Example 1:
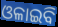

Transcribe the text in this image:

ଓଳାଇବି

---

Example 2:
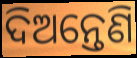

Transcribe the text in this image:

ଦିଅନ୍ତେଣି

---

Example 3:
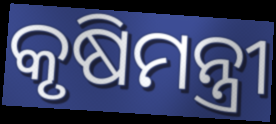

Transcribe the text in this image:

କୃଷିମନ୍ତ୍ରୀ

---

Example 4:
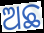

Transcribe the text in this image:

ଅଛ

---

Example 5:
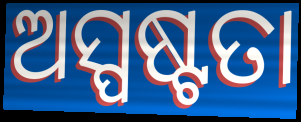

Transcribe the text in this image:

ଅସ୍ପଷ୍ଟତା